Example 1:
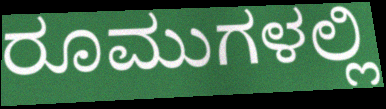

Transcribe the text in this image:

ರೂಮುಗಳಲ್ಲಿ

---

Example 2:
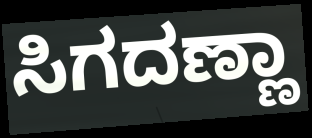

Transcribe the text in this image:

ಸಿಗದಣ್ಣಾ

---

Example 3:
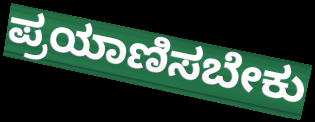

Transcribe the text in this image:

ಪ್ರಯಾಣಿಸಬೇಕು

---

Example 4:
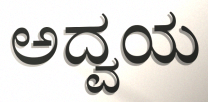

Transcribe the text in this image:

ಅದ್ವಯ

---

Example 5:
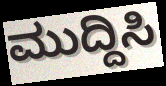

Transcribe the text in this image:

ಮುದ್ದಿಸಿ